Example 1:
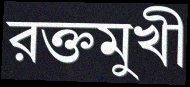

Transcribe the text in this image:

রক্তমুখী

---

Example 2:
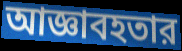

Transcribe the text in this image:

আজ্ঞাবহতার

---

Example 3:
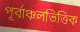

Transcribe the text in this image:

পূর্বাঞ্চলভিত্তিক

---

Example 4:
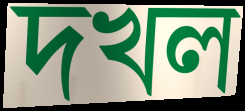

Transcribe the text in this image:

দখল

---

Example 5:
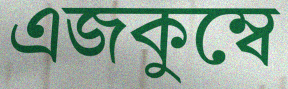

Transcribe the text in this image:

এজকুম্বে